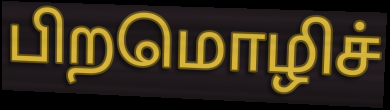
பிறமொழிச்